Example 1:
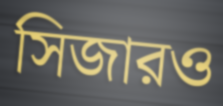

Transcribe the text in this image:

সিজারও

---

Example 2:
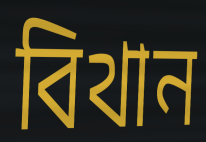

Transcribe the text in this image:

বিথান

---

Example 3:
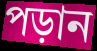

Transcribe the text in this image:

পড়ান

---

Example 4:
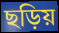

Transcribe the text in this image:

ছড়িয়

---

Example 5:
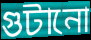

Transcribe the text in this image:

গুটানো